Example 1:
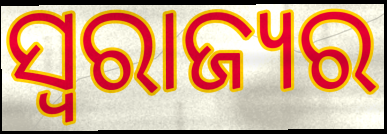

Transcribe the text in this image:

ସ୍ବରାଜ୍ୟର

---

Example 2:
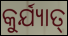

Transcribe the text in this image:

କୁର୍ଯ୍ୟାତ୍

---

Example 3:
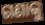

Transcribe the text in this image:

ଗଣାକୁ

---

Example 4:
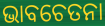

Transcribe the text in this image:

ଭାବଚେତନା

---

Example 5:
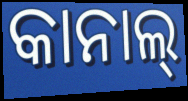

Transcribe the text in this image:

କାନାଲ୍